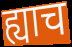
ह्याच